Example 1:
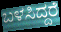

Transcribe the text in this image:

ಬಳಸಿದ್ದರೆ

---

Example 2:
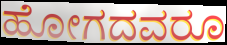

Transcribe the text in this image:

ಹೋಗದವರೂ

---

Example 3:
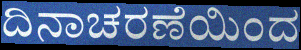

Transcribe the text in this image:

ದಿನಾಚರಣೆಯಿಂದ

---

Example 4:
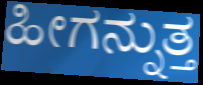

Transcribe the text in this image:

ಹೀಗನ್ನುತ್ತ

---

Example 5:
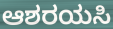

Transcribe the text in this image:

ಆಶರಯಸಿ